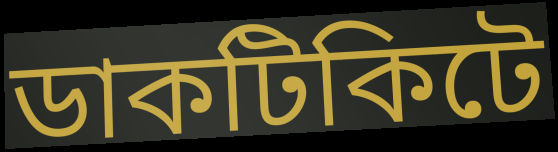
ডাকটিকিটে